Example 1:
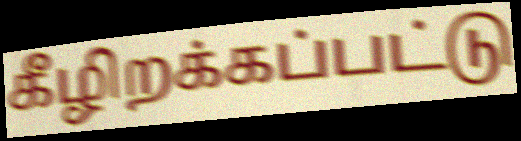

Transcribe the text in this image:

கீழிறக்கப்பட்டு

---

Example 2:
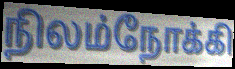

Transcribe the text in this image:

நிலம்நோக்கி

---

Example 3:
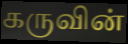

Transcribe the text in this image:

கருவின்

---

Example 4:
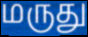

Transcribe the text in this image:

மருது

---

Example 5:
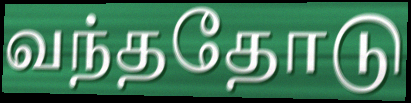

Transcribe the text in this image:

வந்ததோடு